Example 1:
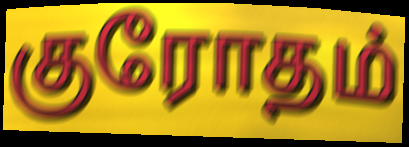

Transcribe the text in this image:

குரோதம்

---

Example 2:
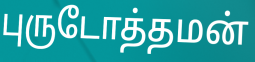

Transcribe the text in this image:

புருடோத்தமன்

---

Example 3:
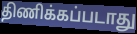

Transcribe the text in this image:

திணிக்கப்படாது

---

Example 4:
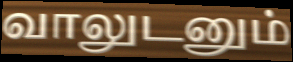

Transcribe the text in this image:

வாலுடனும்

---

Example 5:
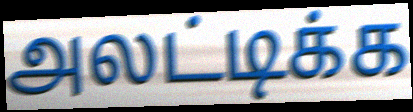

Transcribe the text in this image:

அலட்டிக்க